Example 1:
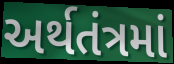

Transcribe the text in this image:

અર્થતંત્રમાં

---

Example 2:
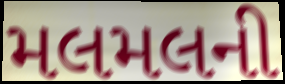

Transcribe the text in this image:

મલમલની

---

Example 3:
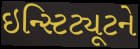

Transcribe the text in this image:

ઇન્સ્ટિટ્યૂટને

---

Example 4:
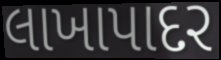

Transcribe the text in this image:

લાખાપાદર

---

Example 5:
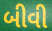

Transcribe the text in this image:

બીવી